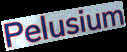
Pelusium